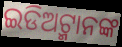
ଇଡିଅଟ୍ମାନଙ୍କ